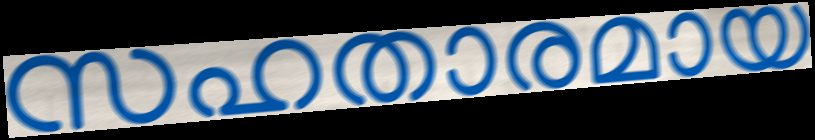
സഹതാരമായ